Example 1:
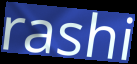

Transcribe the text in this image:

rashi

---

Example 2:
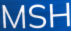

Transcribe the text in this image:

MSH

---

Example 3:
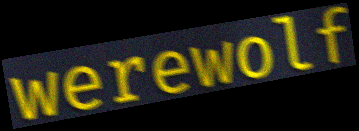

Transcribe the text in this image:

werewolf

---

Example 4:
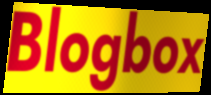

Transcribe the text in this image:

Blogbox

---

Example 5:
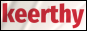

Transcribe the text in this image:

keerthy